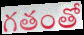
గతంతో